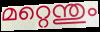
മറ്റെന്തും